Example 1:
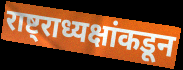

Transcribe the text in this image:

राष्ट्राध्यक्षांकडून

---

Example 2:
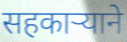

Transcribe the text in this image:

सहकाऱ्याने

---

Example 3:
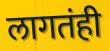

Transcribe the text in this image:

लागतंही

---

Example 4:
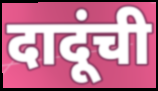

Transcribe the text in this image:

दादूंची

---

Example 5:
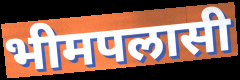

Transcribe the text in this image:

भीमपलासी